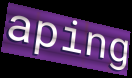
aping